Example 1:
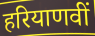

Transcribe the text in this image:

हरियाणवीं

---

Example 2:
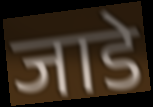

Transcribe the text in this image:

जाडे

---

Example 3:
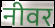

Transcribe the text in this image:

नीवर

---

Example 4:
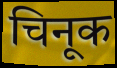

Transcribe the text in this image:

चिनूक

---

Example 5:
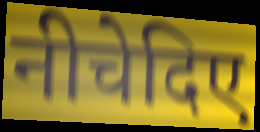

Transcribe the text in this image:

नीचेदिए